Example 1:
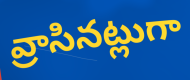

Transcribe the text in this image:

వ్రాసినట్లుగా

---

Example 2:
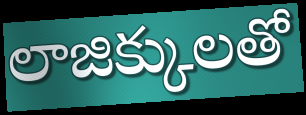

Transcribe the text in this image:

లాజిక్కులతో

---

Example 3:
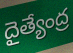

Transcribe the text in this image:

దైత్యేంద్ర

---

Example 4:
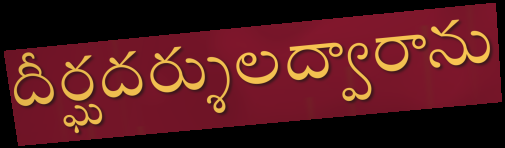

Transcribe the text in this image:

దీర్ఘదర్శులద్వారాను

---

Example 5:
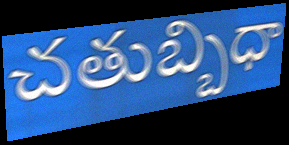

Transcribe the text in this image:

చతుబ్బిధా